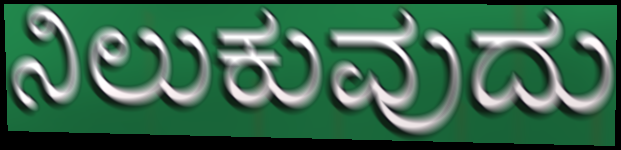
ನಿಲುಕುವುದು